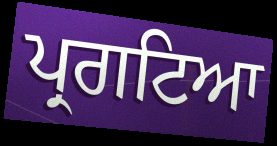
ਪ੍ਰਗਟਿਆ